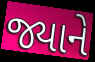
જ્યાને